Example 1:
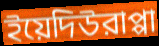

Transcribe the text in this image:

ইয়েদিউরাপ্পা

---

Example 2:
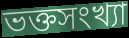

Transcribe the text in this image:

ভক্তসংখ্যা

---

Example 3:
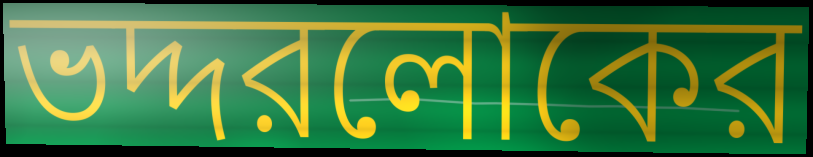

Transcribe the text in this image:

ভদ্দরলোকের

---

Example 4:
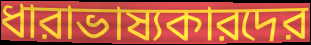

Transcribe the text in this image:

ধারাভাষ্যকারদের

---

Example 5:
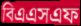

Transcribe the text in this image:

বিএএসএফ